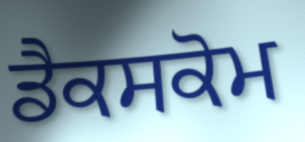
ਡੈਕਸਕੋਮ